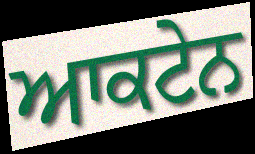
ਆਕਟੇਨ